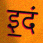
इ॒दं